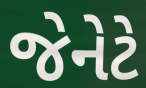
જેનેટે